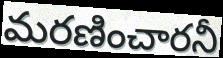
మరణించారనీ